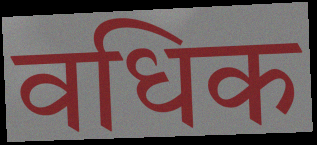
वधिक